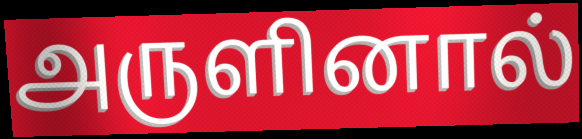
அருளினால்